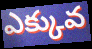
ఎక్కువ